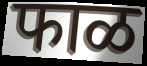
फाळ